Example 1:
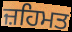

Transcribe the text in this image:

ਜ਼ਹਿਮਤ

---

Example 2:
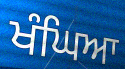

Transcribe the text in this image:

ਖੰਘਿਆ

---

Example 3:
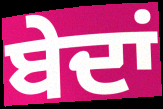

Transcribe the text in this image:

ਬੇਦਾਂ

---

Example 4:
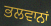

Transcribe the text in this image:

ਭਲਵਾਨਾਂ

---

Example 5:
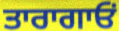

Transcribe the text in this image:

ਤਾਰਾਗਾਓਂ